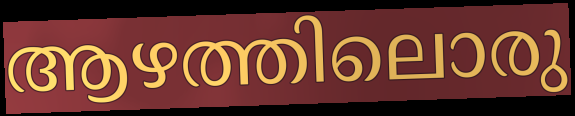
ആഴത്തിലൊരു